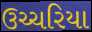
ઉચ્ચરિયા